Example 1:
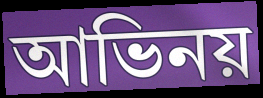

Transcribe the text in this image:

আভিনয়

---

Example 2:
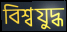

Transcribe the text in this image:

বিশ্বযুদ্ধ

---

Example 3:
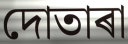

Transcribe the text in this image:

দোতাৰা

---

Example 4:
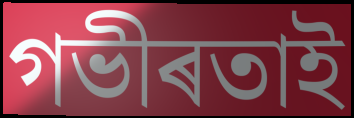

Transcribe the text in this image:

গভীৰতাই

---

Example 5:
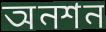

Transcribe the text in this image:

অনশন